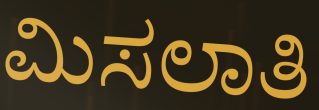
ಮಿಸಲಾತಿ